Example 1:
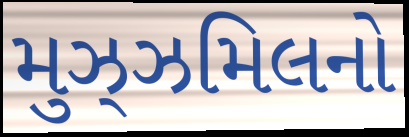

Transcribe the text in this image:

મુઝ્ઝમિલનો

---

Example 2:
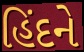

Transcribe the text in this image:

હિંદને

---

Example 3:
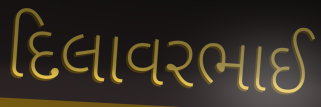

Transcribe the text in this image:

દિલાવરભાઈ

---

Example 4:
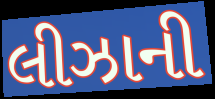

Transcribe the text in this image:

લીઝાની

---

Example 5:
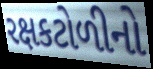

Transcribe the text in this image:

રક્ષકટોળીનો